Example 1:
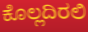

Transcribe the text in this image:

ಕೊಲ್ಲದಿರಲಿ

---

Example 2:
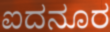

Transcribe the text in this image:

ಐದನೂರ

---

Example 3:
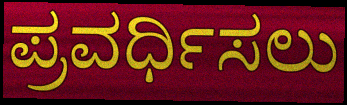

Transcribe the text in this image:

ಪ್ರವರ್ಧಿಸಲು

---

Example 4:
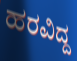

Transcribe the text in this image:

ಹರವಿದ್ದ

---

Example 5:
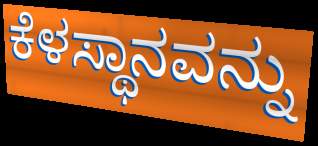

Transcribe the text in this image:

ಕೆಳಸ್ಥಾನವನ್ನು